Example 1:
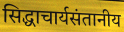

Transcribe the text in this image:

सिद्धाचार्यसंतानीय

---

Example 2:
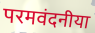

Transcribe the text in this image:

परमवंदनीया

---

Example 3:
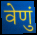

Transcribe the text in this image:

वेणुं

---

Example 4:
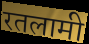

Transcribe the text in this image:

रतलामी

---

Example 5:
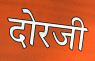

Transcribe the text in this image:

दोरजी